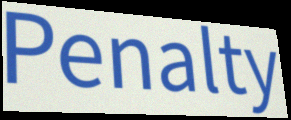
Penalty